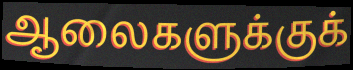
ஆலைகளுக்குக்